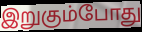
இறுகும்போது